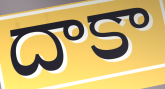
దాకా